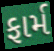
ફાર્મ